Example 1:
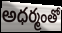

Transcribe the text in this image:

అధర్మంతో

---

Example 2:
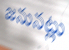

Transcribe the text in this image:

జనునట్లు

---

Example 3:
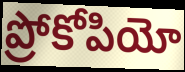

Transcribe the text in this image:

ప్రోకోపియో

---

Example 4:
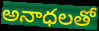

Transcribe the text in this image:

అనాధలతో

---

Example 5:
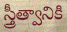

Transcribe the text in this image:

స్త్రీత్వానికి